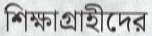
শিক্ষাগ্রাহীদের